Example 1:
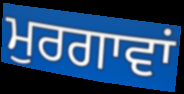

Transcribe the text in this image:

ਮੁਰਗਾਵਾਂ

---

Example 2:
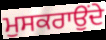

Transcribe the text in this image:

ਮੁਸਕਰਾਉਂਦੇ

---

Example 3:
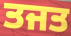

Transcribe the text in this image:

ਤਜਤ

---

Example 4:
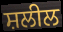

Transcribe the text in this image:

ਸ਼ਲੀਲ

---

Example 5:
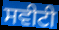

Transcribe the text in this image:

ਸਵੀਟੀ